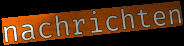
nachrichten